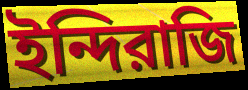
ইন্দিরাজি